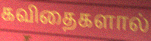
கவிதைகளால்